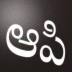
ఆపి